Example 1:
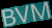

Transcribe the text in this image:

BVM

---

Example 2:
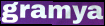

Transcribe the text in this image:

gramya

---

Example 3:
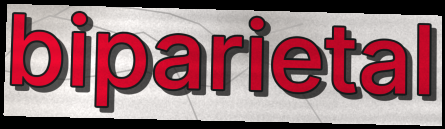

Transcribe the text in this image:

biparietal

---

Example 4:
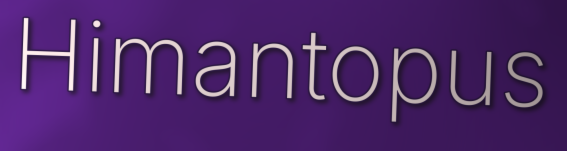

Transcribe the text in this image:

Himantopus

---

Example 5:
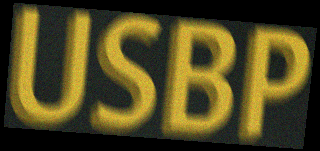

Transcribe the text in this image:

USBP